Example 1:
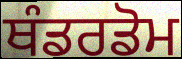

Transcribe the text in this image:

ਥੰਡਰਡੋਮ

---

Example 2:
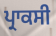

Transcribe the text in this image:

ਪ੍ਰਾਕਸੀ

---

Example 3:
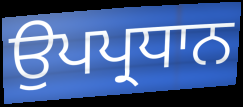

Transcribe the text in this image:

ਉਪਪ੍ਰਧਾਨ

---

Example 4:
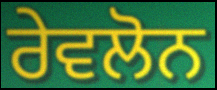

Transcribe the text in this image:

ਰੇਵਲੋਨ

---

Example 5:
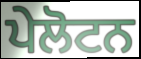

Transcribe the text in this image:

ਪੇਲੋਟਨ